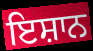
ਇਸ਼ਾਨ